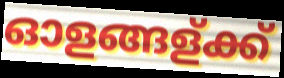
ഓളങ്ങള്ക്ക്